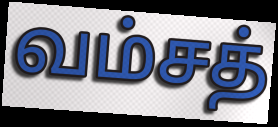
வம்சத்